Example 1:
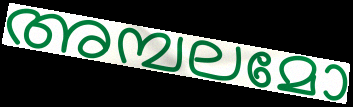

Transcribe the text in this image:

അമ്പലമോ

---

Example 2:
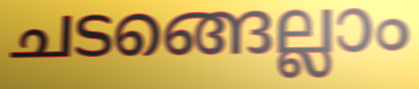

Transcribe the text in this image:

ചടങ്ങെല്ലാം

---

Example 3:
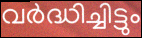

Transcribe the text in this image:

വർദ്ധിച്ചിട്ടും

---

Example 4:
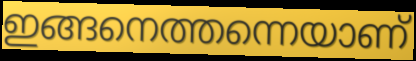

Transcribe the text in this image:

ഇങ്ങനെത്തന്നെയാണ്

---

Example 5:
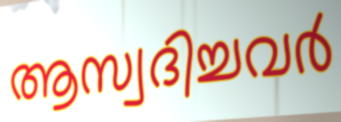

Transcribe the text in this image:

ആസ്വദിച്ചവർ